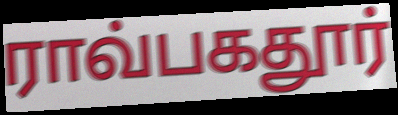
ராவ்பகதூர்